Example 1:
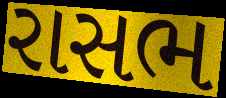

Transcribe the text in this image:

રાસભ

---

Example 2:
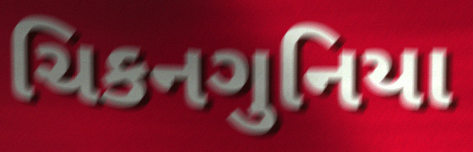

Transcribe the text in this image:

ચિકનગુનિયા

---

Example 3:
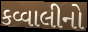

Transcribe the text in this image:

કવ્વાલીનો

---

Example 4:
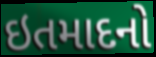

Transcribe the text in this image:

ઇતમાદનો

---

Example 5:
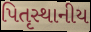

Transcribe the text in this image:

પિતૃસ્થાનીય